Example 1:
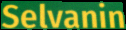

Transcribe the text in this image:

Selvanin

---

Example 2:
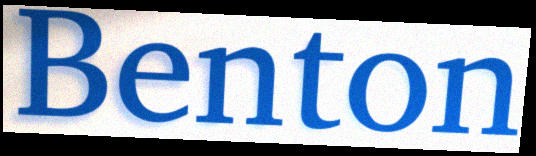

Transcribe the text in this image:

Benton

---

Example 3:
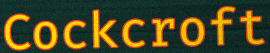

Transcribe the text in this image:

Cockcroft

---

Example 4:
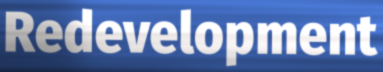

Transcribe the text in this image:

Redevelopment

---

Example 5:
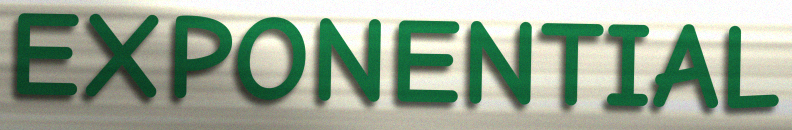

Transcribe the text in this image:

EXPONENTIAL